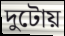
দুটোয়